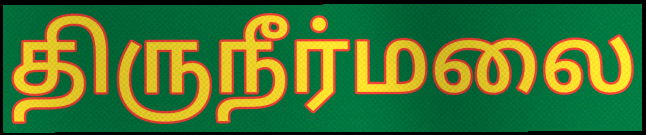
திருநீர்மலை